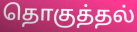
தொகுத்தல்